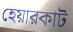
হেয়ারকাট